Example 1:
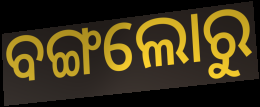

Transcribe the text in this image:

ବଙ୍ଗଲୋରୁ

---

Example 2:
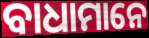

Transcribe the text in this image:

ବାଧାମାନେ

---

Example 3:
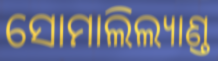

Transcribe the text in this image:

ସୋମାଲିଲ୍ୟାଣ୍ଡ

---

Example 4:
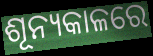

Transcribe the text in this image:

ଶୂନ୍ୟକାଳରେ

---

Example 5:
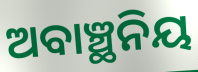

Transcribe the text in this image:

ଅବାଞ୍ଛନିୟ